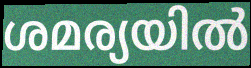
ശമര്യയിൽ